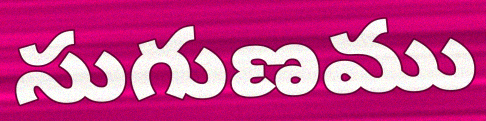
సుగుణము